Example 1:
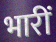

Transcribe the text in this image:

भारीं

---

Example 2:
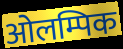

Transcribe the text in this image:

ओलम्पिक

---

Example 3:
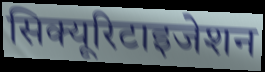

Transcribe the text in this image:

सिक्यूरिटाइजेशन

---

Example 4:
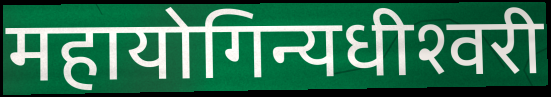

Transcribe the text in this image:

महायोगिन्यधीश्वरी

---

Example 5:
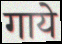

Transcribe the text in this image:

गाये